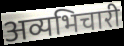
अव्यभिचारी